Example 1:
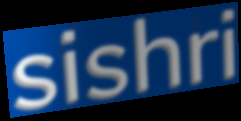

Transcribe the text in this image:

sishri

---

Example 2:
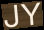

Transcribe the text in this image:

JY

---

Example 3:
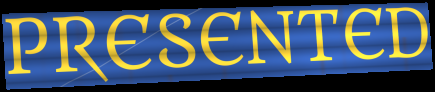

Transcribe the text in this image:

PRESENTED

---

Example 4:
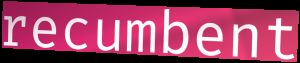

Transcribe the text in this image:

recumbent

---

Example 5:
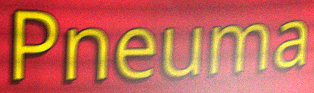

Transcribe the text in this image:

Pneuma